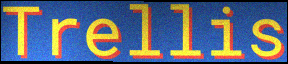
Trellis